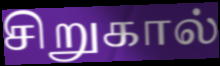
சிறுகால்